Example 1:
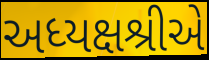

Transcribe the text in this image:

અધ્યક્ષશ્રીએ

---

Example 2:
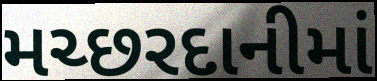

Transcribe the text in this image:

મચ્છરદાનીમાં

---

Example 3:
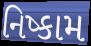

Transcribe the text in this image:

નિષ્કામ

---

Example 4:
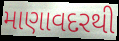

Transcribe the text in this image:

માણાવદરથી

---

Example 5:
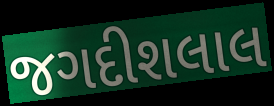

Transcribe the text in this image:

જગદીશલાલ